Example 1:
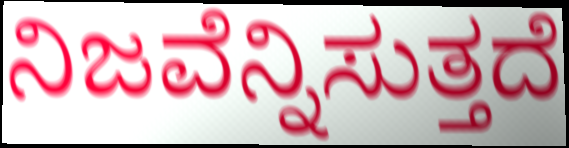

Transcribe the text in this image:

ನಿಜವೆನ್ನಿಸುತ್ತದೆ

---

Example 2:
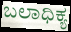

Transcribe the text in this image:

ಬಲಾಧಿಕ್ಯ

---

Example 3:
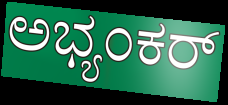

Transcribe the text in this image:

ಅಭ್ಯಂಕರ್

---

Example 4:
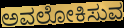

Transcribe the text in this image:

ಅವಲೋಕಿಸುವ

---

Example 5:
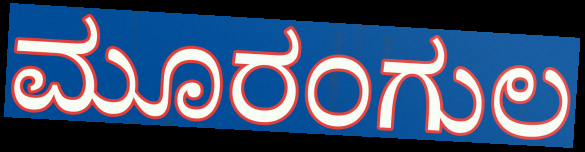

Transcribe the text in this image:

ಮೂರಂಗುಲ